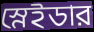
স্নেইডার